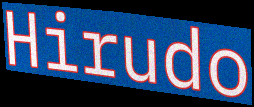
Hirudo